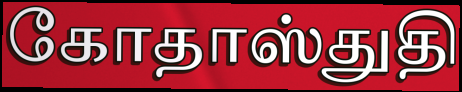
கோதாஸ்துதி